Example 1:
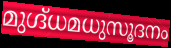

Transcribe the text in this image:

മുഗ്ദ്ധമധുസൂദനം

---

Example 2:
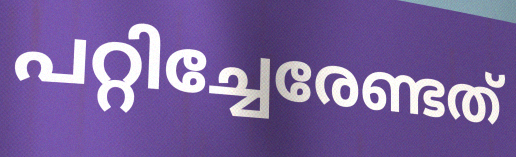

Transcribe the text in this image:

പറ്റിച്ചേരേണ്ടത്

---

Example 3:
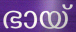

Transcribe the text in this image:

ഭായ്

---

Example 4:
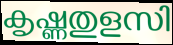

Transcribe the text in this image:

കൃഷ്ണതുളസി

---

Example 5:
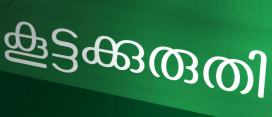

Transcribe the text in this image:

കൂട്ടക്കുരുതി